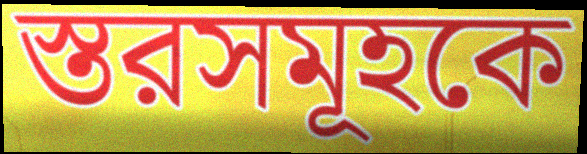
স্তরসমূহকে